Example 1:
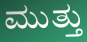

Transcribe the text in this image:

ಮುತ್ತು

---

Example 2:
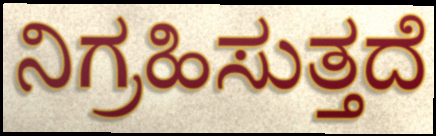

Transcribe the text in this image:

ನಿಗ್ರಹಿಸುತ್ತದೆ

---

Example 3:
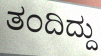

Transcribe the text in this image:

ತಂದಿದ್ದು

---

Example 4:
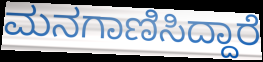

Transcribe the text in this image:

ಮನಗಾಣಿಸಿದ್ದಾರೆ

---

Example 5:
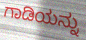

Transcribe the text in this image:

ಗಾಡಿಯನ್ನು